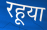
रहूया